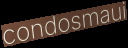
condosmaui